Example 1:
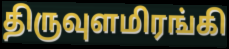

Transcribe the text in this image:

திருவுளமிரங்கி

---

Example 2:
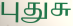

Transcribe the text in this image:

புதுசு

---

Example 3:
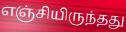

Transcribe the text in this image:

எஞ்சியிருந்தது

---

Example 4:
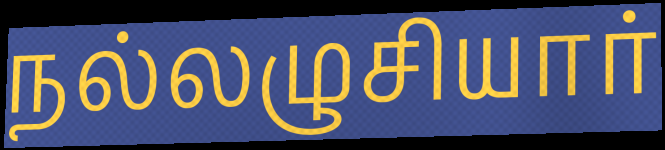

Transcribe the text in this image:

நல்லழுசியார்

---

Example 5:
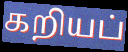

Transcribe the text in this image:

கறியப்